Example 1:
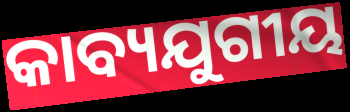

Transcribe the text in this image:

କାବ୍ୟଯୁଗୀୟ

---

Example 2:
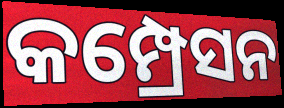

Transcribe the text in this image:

କମ୍ପ୍ରେସନ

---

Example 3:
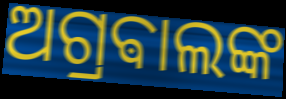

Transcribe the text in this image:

ଅଗ୍ରଵାଲଙ୍କ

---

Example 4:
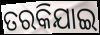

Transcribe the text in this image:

ତରକିଯାଇ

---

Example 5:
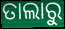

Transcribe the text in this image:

ତାଲାରୁ